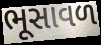
ભૂસાવળ